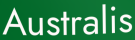
Australis